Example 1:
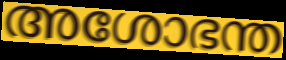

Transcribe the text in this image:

അശോഭന്ത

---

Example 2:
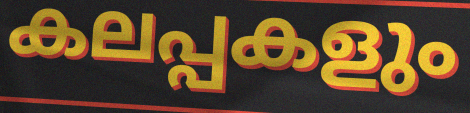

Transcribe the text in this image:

കലപ്പകളും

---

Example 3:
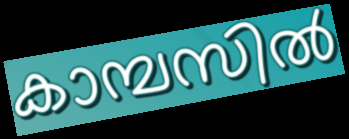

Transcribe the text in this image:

കാമ്പസിൽ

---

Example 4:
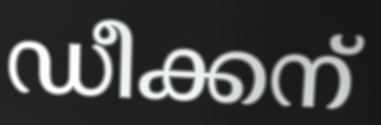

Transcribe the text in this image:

ഡീക്കന്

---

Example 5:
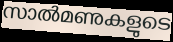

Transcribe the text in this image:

സാൽമണുകളുടെ